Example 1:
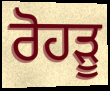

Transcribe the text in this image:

ਰੋਹੜੂ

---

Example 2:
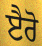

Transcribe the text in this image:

ੲੈਰੋ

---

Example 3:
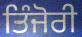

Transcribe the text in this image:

ਤਿੰਜੋਰੀ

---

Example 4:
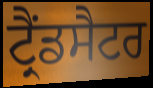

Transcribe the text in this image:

ਟ੍ਰੈਂਡਸੈਟਰ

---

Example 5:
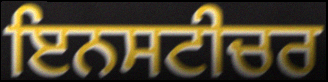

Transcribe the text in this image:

ਇਨਸਟੀਚਰ